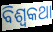
ବିଶ୍ୱକଥା